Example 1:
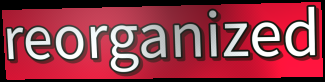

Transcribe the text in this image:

reorganized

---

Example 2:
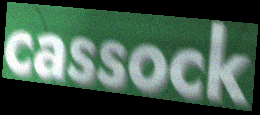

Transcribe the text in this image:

cassock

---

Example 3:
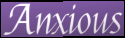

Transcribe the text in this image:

Anxious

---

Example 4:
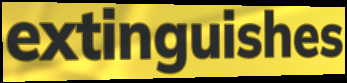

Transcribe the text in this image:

extinguishes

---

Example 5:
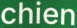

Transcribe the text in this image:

chien